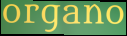
organo